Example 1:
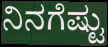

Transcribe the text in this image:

ನಿನಗೆಷ್ಟು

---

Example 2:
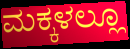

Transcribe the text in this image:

ಮಕ್ಕಳಲ್ಲೂ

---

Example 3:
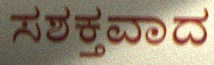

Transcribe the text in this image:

ಸಶಕ್ತವಾದ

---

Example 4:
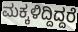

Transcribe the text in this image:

ಮಕ್ಕಳಿದ್ದಿದ್ದರೆ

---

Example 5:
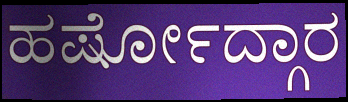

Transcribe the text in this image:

ಹರ್ಷೋದ್ಗಾರ